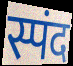
स्पंद